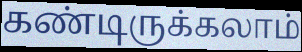
கண்டிருக்கலாம்